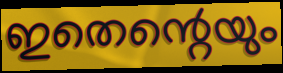
ഇതെന്റെയും